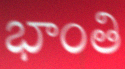
భాంతి